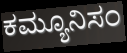
ಕಮ್ಯೂನಿಸಂ